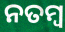
ନତମ୍ବ